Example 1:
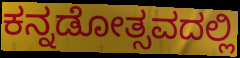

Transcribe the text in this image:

ಕನ್ನಡೋತ್ಸವದಲ್ಲಿ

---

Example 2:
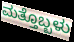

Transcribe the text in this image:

ಮತ್ತೊಬ್ಬಳು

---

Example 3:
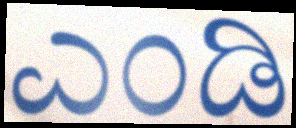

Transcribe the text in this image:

ಎಂಡಿ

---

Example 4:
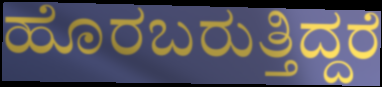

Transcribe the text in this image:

ಹೊರಬರುತ್ತಿದ್ದರೆ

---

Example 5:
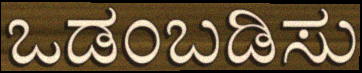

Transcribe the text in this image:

ಒಡಂಬಡಿಸು